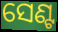
ସେଣ୍ଟ